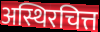
अस्थिरचित्त